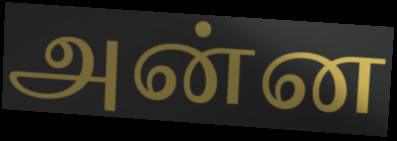
அன்ன